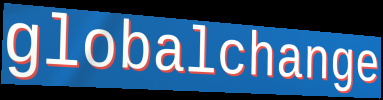
globalchange